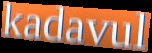
kadavul